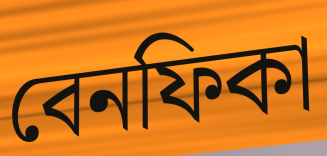
বেনফিকা